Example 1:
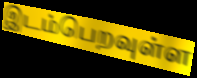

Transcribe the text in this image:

இடம்பெறவுள்ள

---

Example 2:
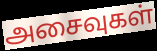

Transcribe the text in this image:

அசைவுகள்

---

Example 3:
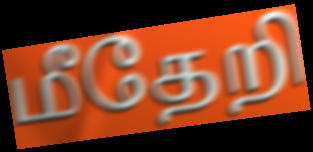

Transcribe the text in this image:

மீதேறி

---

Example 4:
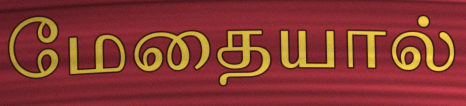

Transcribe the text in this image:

மேதையால்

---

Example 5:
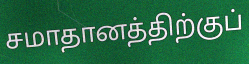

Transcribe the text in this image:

சமாதானத்திற்குப்